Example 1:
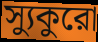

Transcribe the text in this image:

স্যুকুরো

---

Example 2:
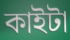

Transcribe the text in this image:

কাইটা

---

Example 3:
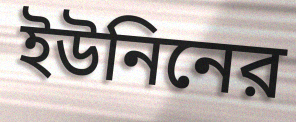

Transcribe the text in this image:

ইউনিনের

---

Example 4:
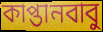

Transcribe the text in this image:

কাপ্তানবাবু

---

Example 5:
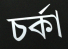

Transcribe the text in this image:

চর্কা